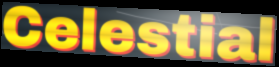
Celestial